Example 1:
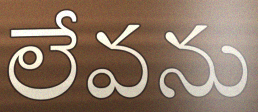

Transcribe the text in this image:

లేవను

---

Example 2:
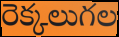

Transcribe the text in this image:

రెక్కలుగల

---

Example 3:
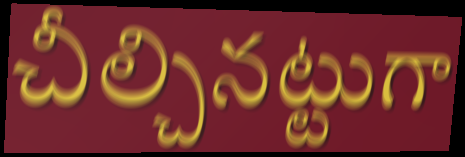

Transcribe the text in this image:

చీల్చినట్టుగా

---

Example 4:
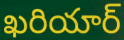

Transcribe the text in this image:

ఖరియార్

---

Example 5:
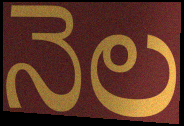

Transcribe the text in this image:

నెల